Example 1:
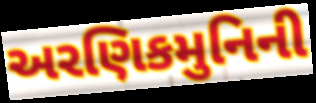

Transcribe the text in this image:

અરણિકમુનિની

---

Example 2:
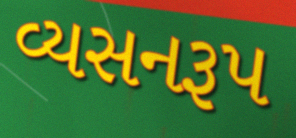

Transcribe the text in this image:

વ્યસનરૂપ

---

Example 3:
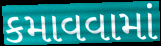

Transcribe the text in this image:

કમાવવામાં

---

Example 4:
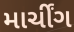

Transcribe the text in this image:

માર્ચીંગ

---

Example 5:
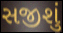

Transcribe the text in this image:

સજીશું